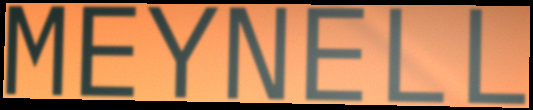
MEYNELL